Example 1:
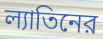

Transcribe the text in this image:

ল্যাতিনের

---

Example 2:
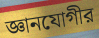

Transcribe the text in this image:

জ্ঞানযোগীর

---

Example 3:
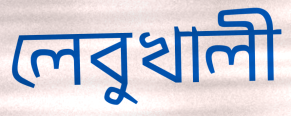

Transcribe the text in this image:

লেবুখালী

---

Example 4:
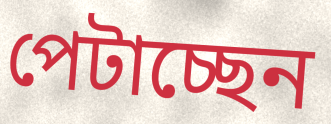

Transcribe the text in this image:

পেটাচ্ছেন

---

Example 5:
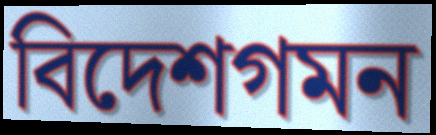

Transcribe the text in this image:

বিদেশগমন